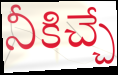
నీకిచ్చే